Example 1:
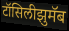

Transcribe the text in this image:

टॉसिलीझुमॅब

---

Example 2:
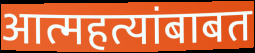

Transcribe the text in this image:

आत्महत्यांबाबत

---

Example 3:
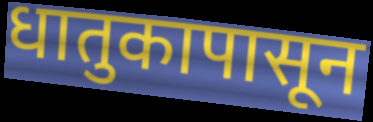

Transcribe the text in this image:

धातुकापासून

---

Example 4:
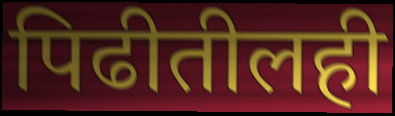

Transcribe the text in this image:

पिढीतीलही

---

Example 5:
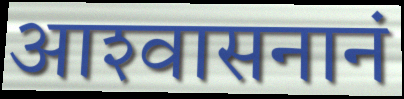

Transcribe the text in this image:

आश्वासनानं